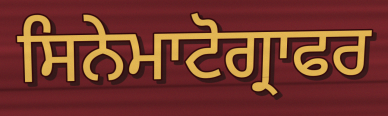
ਸਿਨੇਮਾਟੋਗ੍ਰਾਫਰ